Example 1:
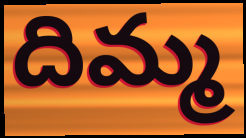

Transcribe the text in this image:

దిమ్మ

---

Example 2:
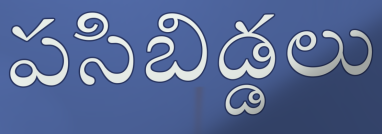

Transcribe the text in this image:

పసిబిడ్డలు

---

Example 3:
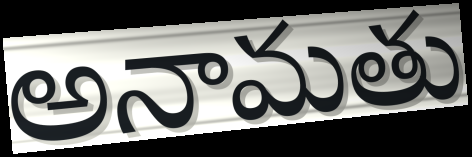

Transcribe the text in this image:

అనామతు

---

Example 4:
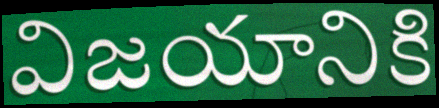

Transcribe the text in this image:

విజయానికి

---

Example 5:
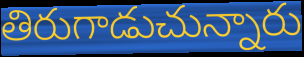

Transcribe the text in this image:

తిరుగాడుచున్నారు